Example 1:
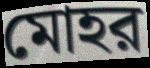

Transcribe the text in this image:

মোহর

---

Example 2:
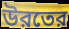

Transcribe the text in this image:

উরতের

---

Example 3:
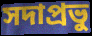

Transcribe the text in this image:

সদাপ্রভু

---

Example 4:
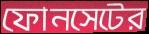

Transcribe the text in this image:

ফোনসেটের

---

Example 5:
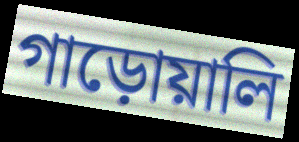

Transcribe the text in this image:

গাড়োয়ালি